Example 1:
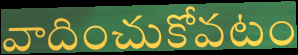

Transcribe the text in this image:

వాదించుకోవటం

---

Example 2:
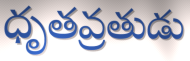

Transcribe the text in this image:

ధృతవ్రతుడు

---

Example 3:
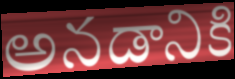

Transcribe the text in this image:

అనడానికి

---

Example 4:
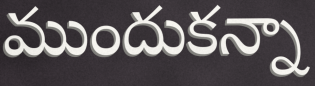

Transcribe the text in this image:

ముందుకన్నా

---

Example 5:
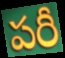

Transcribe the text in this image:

పరీ